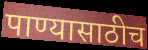
पाण्यासाठीच